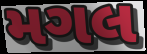
મગલ